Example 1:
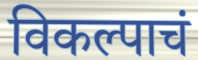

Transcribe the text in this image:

विकल्पाचं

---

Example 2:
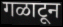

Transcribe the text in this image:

गळाटून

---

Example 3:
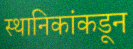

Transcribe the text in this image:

स्थानिकांकडून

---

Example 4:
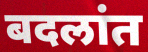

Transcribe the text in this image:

बदलांत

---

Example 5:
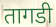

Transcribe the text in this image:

तागडी